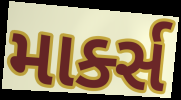
માર્ક્સ